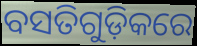
ବସତିଗୁଡ଼ିକରେ